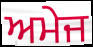
ਅਮੇਜ